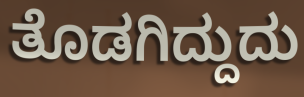
ತೊಡಗಿದ್ದುದು